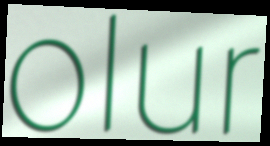
olur